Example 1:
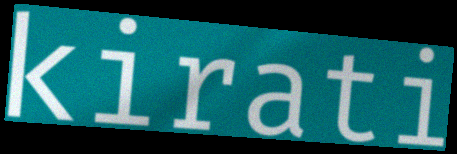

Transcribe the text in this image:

kirati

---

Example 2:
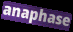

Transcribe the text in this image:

anaphase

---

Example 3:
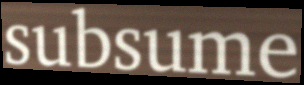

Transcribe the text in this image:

subsume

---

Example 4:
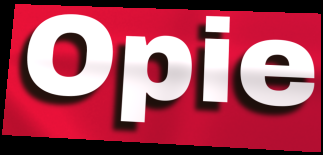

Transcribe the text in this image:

Opie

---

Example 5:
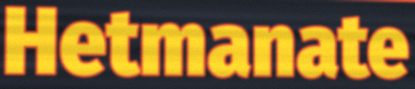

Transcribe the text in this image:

Hetmanate